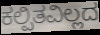
ಕಲ್ಪಿತವಿಲ್ಲದ